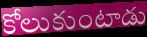
కోలుకుంటాడు